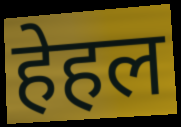
हेहल